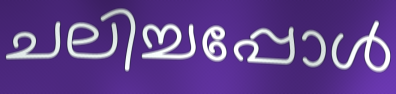
ചലിച്ചപ്പോൾ